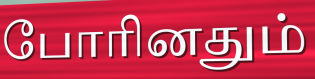
போரினதும்